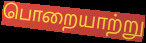
பொறையாற்று